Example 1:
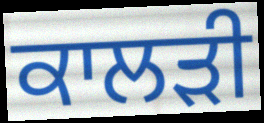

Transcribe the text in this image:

ਕਾਲੜੀ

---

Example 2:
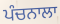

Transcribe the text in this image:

ਪੰਚਨਾਲਾ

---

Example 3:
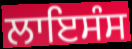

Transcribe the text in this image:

ਲਾਇਸੰਸ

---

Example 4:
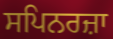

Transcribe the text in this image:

ਸਪਿਨਰਜ਼ਾ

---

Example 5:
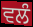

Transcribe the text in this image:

ਵਲੰ